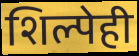
शिल्पेही